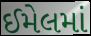
ઈમેલમાં